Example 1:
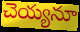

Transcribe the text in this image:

చెయ్యనూ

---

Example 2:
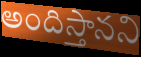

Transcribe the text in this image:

అందిస్తానని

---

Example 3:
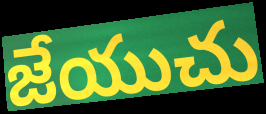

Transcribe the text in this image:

జేయుచు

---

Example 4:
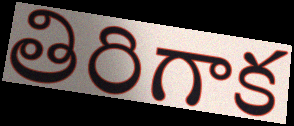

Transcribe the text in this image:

తిరిగాక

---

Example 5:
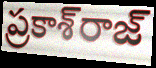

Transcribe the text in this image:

ప్రకాశ్‌రాజ్